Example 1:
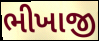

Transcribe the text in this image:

ભીખાજી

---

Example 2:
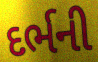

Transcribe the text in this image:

દર્ભની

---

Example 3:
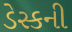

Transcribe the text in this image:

ડેસ્કની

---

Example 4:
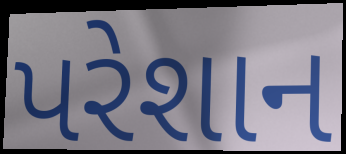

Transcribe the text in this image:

પરેશાન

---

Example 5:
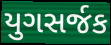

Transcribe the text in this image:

યુગસર્જક